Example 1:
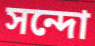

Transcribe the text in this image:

সন্দো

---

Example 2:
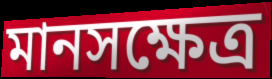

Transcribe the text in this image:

মানসক্ষেত্র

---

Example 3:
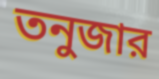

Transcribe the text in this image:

তনুজার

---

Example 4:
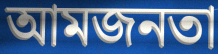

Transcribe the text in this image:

আমজনতা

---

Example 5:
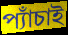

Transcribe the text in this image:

প্যাঁচাই